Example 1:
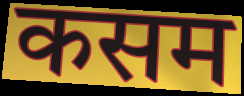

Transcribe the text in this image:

कसम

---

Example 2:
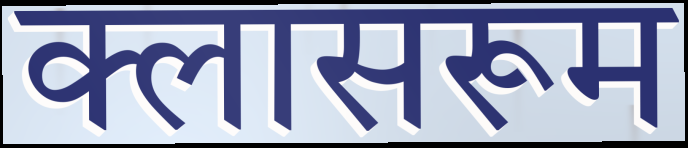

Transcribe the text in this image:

क्‍लासरूम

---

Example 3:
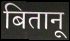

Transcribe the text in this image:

बितानू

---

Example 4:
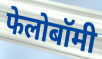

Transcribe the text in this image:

फेलोबॉमी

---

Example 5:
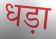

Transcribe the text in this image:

धड़ा